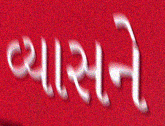
વ્યાસને